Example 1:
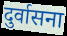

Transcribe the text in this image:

दुर्वासना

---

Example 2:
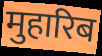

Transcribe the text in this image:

मुहारिब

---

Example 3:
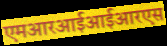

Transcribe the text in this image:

एमआरआईआईआरएस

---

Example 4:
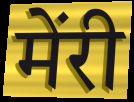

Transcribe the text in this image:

मेंरी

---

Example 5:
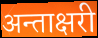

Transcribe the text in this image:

अन्ताक्षरी